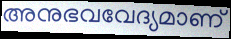
അനുഭവവേദ്യമാണ്